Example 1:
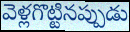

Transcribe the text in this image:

వెళ్లగొట్టినప్పుడు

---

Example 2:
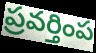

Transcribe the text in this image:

ప్రవర్తింప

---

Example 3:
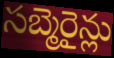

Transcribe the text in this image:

సబ్మెరైన్లు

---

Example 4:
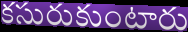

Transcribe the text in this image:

కసురుకుంటారు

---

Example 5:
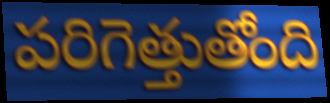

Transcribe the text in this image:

పరిగెత్తుతోంది